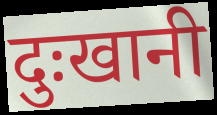
दुःखानी